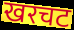
खरचट